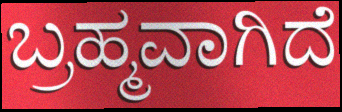
ಬ್ರಹ್ಮವಾಗಿದೆ